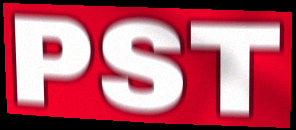
PST